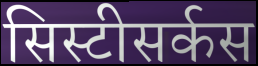
सिस्टीसर्कस